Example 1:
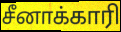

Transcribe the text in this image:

சீனாக்காரி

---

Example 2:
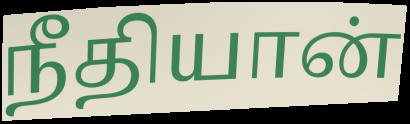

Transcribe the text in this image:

நீதியான்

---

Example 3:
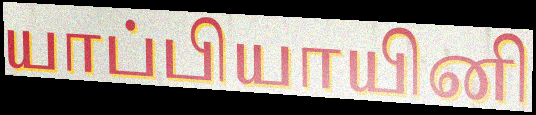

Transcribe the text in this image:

யாப்பியாயினி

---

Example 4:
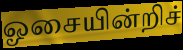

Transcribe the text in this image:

ஓசையின்றிச்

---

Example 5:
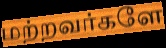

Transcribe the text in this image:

மற்றவர்களே